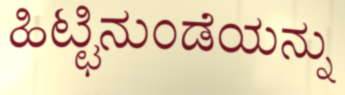
ಹಿಟ್ಟಿನುಂಡೆಯನ್ನು